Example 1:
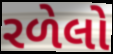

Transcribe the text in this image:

રળેલો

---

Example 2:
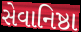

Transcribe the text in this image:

સેવાનિષ્ઠા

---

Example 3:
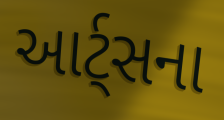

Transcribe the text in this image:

આર્ટ્સના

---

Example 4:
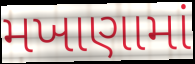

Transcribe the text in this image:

મખાણામાં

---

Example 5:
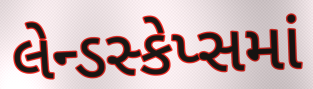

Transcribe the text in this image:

લેન્ડસ્કેપ્સમાં